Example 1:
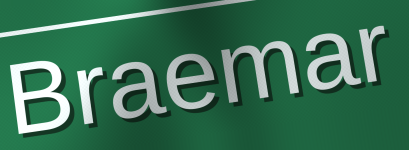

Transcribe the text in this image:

Braemar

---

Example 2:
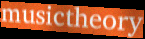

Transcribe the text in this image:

musictheory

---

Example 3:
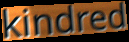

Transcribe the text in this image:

kindred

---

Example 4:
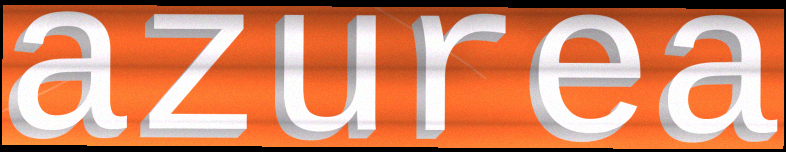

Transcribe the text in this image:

azurea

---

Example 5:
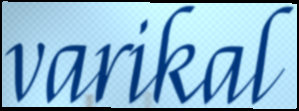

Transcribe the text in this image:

varikal